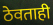
ठेवताही